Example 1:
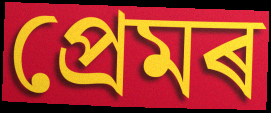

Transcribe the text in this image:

প্ৰেমৰ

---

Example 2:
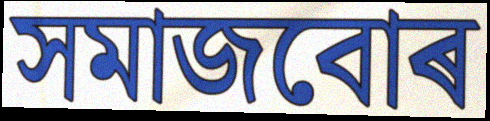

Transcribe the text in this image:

সমাজবোৰ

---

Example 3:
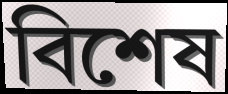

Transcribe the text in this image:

বিশেষ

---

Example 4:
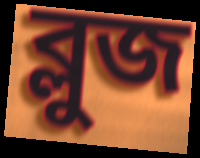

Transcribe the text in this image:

ব্লুজ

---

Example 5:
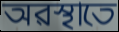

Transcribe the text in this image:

অৱস্থাতে